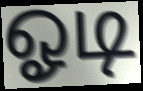
ஓடி